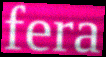
fera